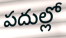
పదుల్లో